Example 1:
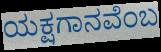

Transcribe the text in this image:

ಯಕ್ಷಗಾನವೆಂಬ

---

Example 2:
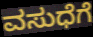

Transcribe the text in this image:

ವಸುಧೆಗೆ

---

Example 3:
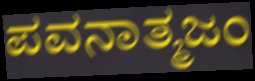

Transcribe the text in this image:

ಪವನಾತ್ಮಜಂ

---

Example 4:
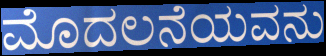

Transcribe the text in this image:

ಮೊದಲನೆಯವನು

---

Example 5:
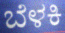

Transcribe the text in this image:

ಬೆಳಕಿ